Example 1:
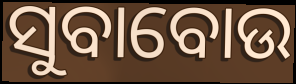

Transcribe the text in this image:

ସୁବାବୋଉ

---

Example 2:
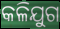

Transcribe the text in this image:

କଳିଯୁଗ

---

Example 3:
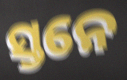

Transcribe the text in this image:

ସ୍ତନେ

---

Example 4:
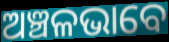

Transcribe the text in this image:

ଅଞ୍ଚଳଭାବେ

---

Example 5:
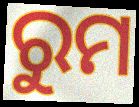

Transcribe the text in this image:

ରୁମ